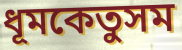
ধূমকেতুসম